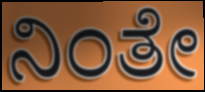
ನಿಂತೇ